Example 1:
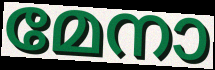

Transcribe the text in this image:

മേനാ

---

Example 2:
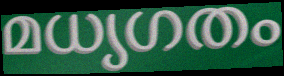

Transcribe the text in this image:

മധ്യഗതം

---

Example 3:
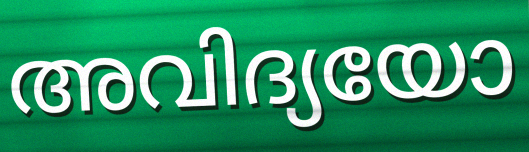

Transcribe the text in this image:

അവിദ്യയോ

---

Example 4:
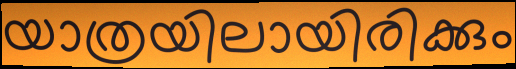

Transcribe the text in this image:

യാത്രയിലായിരിക്കും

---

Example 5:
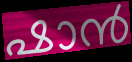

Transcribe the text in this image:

ഷാൻ